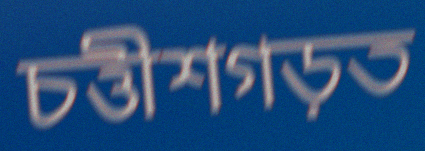
চত্তীশগড়ত